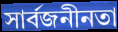
সাৰ্বজনীনতা